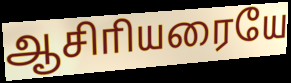
ஆசிரியரையே